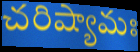
చరిష్యామః